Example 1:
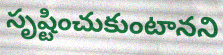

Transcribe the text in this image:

సృష్టించుకుంటానని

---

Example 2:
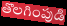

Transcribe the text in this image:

తొలగింపుడి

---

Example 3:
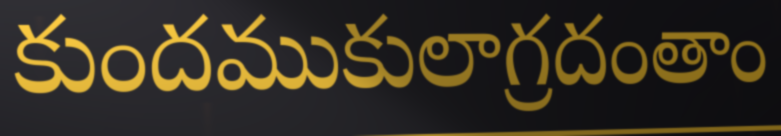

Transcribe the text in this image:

కుందముకులాగ్రదంతాం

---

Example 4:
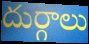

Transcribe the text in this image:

దుర్గాలు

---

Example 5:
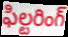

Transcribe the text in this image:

ఫిల్టరింగ్